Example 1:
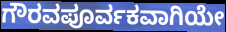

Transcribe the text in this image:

ಗೌರವಪೂರ್ವಕವಾಗಿಯೇ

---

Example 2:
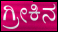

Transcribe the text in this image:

ಗ್ರೀಕಿನ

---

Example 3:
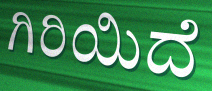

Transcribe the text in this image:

ಗಿರಿಯಿದೆ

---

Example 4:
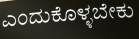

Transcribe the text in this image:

ಎಂದುಕೊಳ್ಳಬೇಕು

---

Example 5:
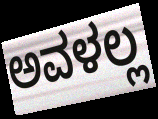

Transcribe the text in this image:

ಅವಳಲ್ಲ